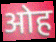
ओह